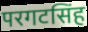
परगटसिंह